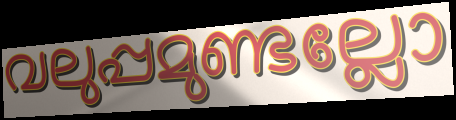
വലുപ്പമുണ്ടല്ലോ